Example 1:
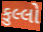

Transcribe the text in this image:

કુલ્લો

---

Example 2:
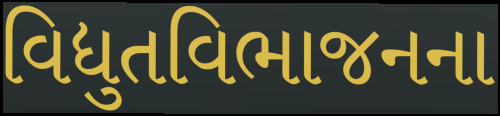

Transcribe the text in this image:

વિદ્યુતવિભાજનના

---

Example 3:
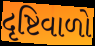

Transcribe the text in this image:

દૃષ્ટિવાળો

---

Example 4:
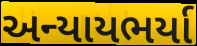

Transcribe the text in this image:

અન્યાયભર્યા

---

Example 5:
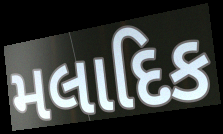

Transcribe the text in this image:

મલાદિક